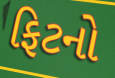
ફિટનો